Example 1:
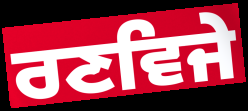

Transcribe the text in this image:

ਰਣਵਿਜੇ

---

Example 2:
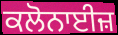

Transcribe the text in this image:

ਕਲੋਨਾਈਜ਼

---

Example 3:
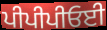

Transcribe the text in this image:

ਪੀਪੀਪੀਓਈ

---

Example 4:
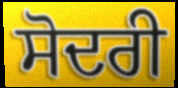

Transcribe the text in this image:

ਸੋਦਰੀ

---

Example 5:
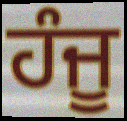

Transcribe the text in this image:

ਹੰਜੂ